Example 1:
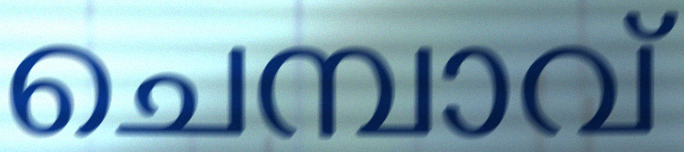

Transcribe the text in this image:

ചെമ്പാവ്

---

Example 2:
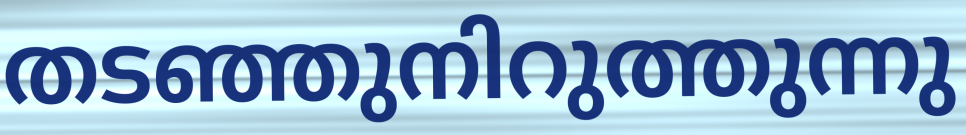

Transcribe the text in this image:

തടഞ്ഞുനിറുത്തുന്നു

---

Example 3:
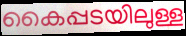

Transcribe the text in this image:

കൈപ്പടയിലുള്ള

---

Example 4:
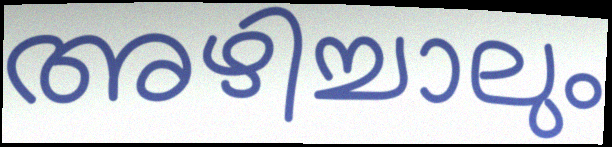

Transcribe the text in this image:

അഴിച്ചാലും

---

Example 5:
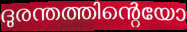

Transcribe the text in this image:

ദുരന്തത്തിന്റെയോ